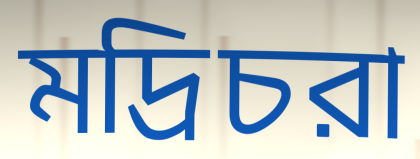
মদ্রিচরা